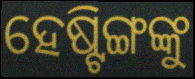
ହେଷ୍ଟିଙ୍ଗଙ୍କୁ